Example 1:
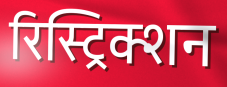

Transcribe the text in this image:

रिस्ट्रिक्शन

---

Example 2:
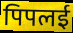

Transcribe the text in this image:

पिपलई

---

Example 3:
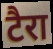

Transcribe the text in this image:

टैरा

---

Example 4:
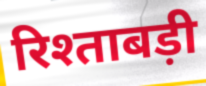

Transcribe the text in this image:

रिश्ताबड़ी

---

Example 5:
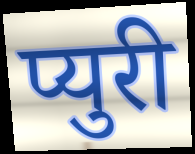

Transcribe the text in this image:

प्युरी